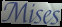
Mises